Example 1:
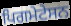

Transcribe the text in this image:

ਪਿਗਮੇਟੇਸਨ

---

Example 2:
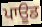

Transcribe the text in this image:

ਪਾਊਡ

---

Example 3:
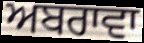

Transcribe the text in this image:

ਅਬਰਾਵਾ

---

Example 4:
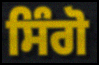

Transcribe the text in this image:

ਸਿੰਗੋ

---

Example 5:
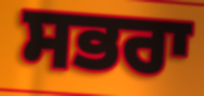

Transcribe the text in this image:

ਸਭਰਾ